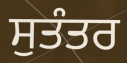
ਸੁਤੰਤਰ